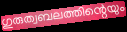
ഗുരുത്വബലത്തിന്റെയും